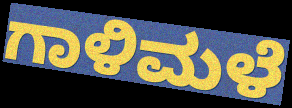
ಗಾಳಿಮಳೆ